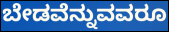
ಬೇಡವೆನ್ನುವವರೂ